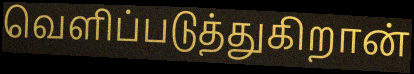
வெளிப்படுத்துகிறான்